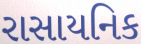
રાસાયનિક